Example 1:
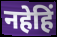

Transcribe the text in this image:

नहेहिं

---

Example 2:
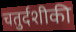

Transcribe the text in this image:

चतुर्दशीकी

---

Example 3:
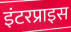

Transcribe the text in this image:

इंटरप्राइस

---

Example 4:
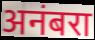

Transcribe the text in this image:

अनंबरा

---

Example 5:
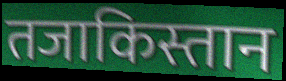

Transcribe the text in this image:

तजाकिस्‍तान